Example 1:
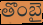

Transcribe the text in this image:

తొంబై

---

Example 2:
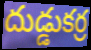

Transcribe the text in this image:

దుడ్డుకర్ర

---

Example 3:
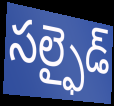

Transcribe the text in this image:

సల్ఫైడ్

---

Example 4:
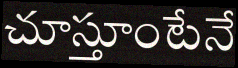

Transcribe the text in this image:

చూస్తూంటేనే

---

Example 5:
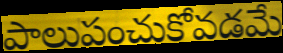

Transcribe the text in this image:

పాలుపంచుకోవడమే